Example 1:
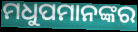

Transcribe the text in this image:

ମଧୁପମାନଙ୍କର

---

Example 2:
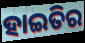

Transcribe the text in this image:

ହାଇତିର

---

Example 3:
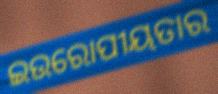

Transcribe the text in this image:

ଇଉରୋପୀୟତାର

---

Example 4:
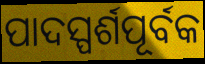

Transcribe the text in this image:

ପାଦସ୍ପର୍ଶପୂର୍ବକ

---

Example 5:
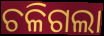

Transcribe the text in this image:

ଚଳିଗଲା